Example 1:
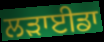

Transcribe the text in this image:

ਲੜਾਈਡਾ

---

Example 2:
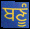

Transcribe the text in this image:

ਬਣੂੰ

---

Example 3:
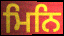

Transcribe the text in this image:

ਮਿਨਿ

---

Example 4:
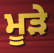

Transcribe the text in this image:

ਮੂੜੇ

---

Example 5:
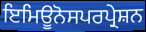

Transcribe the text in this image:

ਇਮਿਊਨੋਸਪਰਪ੍ਰੇਸ਼ਨ